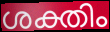
ശക്തിം